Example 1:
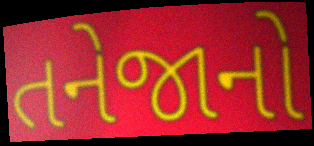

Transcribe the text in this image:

તનેજાનો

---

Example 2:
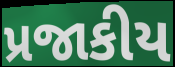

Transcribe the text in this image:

પ્રજાકીય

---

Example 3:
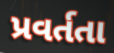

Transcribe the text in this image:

પ્રવર્તતા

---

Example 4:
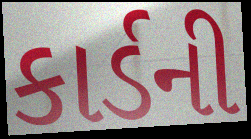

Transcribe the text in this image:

કાર્ડની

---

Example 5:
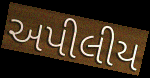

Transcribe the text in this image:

અપીલીય